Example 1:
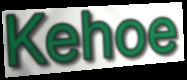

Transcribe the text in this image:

Kehoe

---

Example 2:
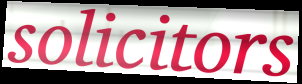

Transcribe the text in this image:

solicitors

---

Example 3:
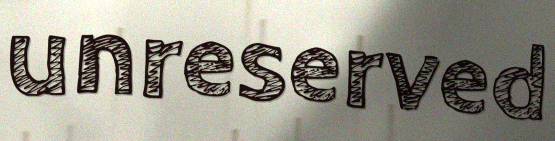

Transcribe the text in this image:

unreserved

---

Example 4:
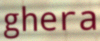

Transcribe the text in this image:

ghera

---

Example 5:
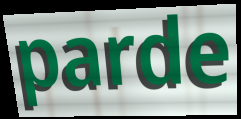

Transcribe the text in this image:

parde